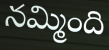
నమ్మింది